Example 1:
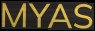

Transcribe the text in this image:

MYAS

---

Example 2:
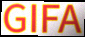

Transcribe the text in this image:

GIFA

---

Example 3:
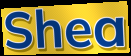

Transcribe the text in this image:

Shea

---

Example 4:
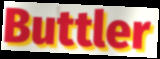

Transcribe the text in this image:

Buttler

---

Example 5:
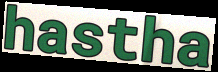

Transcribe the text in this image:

hastha